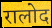
रालोद